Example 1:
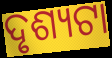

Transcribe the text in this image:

ଦୃଶ୍ୟଟା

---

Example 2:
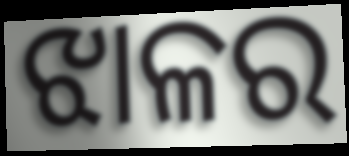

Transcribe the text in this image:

ଝାଳର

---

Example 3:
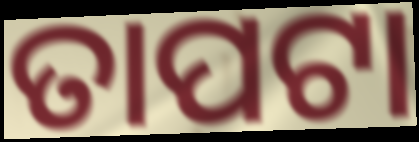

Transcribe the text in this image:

ତାପଟା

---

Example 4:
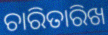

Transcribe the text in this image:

ଚାରିତାରିଖ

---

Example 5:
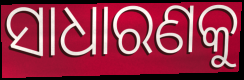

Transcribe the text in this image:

ସାଧାରଣକୁ